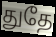
துதே